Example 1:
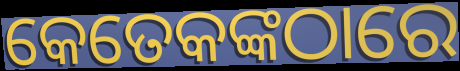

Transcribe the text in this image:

କେତେକଙ୍କଠାରେ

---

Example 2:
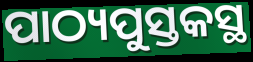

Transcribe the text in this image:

ପାଠ୍ୟପୁସ୍ତକସ୍ଥ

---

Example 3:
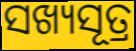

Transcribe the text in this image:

ସଖ୍ୟସୂତ୍ର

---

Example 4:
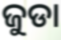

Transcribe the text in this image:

ଜୁଡା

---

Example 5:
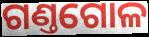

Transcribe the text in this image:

ଗଣ୍ତଗୋଳ